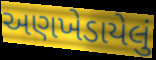
અણખેડાયેલું